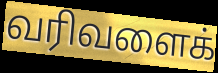
வரிவளைக்